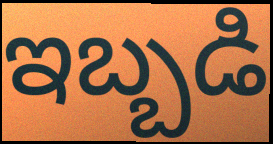
ఇబ్బడి